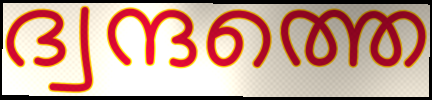
ദ്വന്ദത്തെ